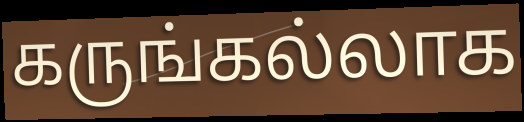
கருங்கல்லாக